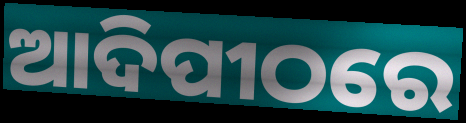
ଆଦିପୀଠରେ